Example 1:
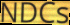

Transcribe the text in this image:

NDCs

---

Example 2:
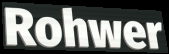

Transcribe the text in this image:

Rohwer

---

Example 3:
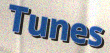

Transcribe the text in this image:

Tunes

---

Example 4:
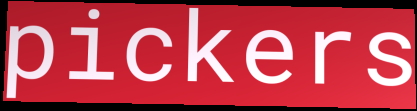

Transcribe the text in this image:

pickers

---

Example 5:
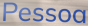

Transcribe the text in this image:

Pessoa